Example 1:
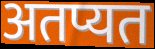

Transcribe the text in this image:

अतप्यत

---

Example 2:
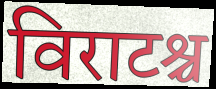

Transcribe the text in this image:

विराटश्च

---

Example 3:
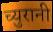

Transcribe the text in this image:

च्युरानी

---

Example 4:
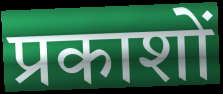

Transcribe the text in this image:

प्रकाशों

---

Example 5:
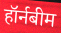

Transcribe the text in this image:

हॉर्नबीम